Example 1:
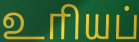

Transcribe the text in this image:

உரியப்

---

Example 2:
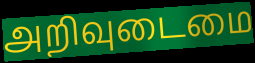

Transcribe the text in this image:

அறிவுடைமை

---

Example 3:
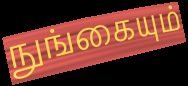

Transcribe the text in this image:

நுங்கையும்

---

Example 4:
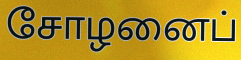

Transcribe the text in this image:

சோழனைப்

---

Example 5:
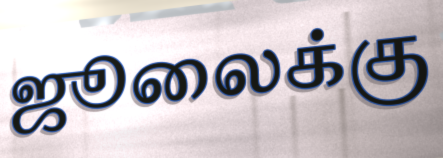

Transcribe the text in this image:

ஜூலைக்கு